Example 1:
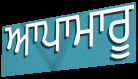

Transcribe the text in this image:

ਆਪਾਮਾਰੂ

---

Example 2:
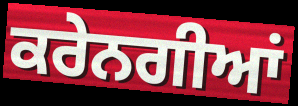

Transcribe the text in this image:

ਕਰੇਨਗੀਆਂ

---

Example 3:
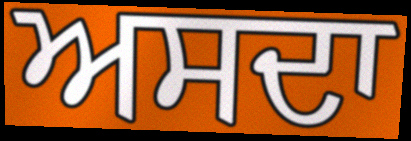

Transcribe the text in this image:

ਅਸਦਾ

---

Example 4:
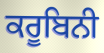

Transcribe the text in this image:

ਕਰੂਬਿਨੀ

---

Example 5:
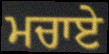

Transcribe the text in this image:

ਮਚਾਏ